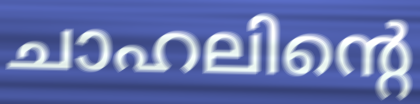
ചാഹലിന്റെ